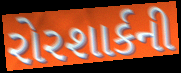
રોરશાર્કની